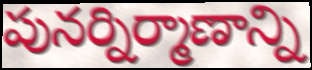
పునర్నిర్మాణాన్ని